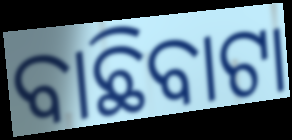
ବାଛିବାଟା